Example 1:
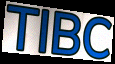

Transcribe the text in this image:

TIBC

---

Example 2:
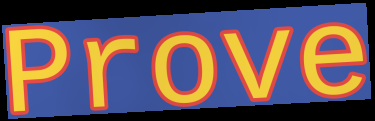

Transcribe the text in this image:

Prove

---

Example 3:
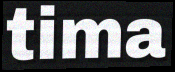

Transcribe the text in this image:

tima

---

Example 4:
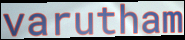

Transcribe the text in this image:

varutham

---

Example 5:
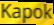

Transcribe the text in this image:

Kapok